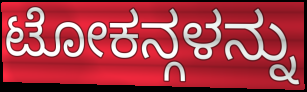
ಟೋಕನ್ಗಳನ್ನು